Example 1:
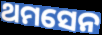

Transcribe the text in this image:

ଥମସେନ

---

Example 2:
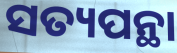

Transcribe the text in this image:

ସତ୍ୟପନ୍ଥା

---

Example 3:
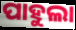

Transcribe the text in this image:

ପାହୁଲା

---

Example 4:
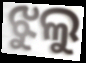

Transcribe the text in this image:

ଝୁଲୁ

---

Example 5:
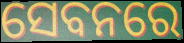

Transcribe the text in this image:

ସେବନରେ